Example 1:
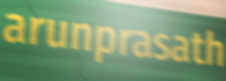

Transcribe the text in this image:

arunprasath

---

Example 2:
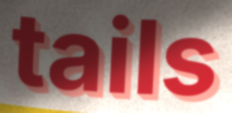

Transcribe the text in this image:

tails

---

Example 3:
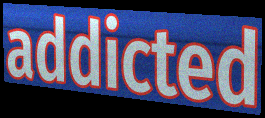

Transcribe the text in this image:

addicted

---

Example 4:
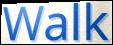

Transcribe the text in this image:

Walk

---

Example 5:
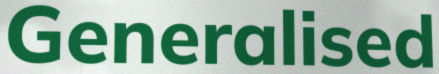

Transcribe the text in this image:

Generalised